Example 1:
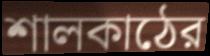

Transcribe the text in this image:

শালকাঠের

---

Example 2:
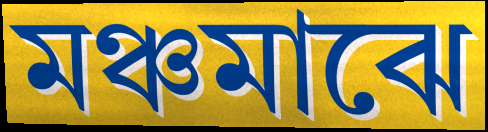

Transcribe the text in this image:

মঞ্চমাঝে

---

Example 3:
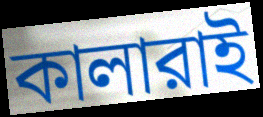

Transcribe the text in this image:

কালারাই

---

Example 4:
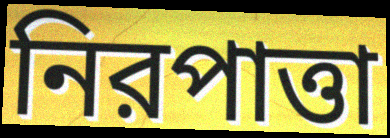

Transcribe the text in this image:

নিরপাত্তা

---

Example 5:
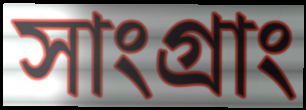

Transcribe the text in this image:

সাংগ্রাং